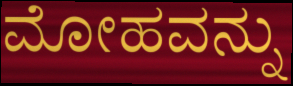
ಮೋಹವನ್ನು